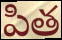
పిత